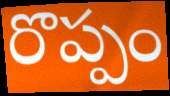
రొప్పం